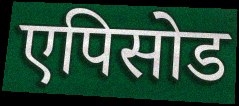
एपिसोड